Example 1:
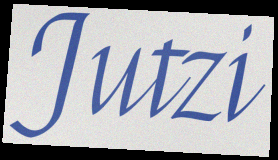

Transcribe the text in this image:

Jutzi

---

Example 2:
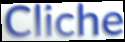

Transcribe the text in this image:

Cliche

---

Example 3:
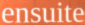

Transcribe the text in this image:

ensuite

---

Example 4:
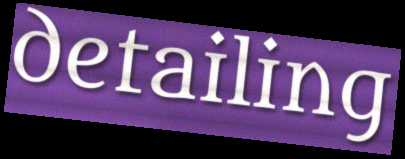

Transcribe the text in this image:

detailing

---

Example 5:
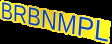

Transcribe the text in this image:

BRBNMPL